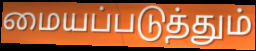
மையப்படுத்தும்